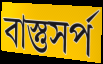
বাস্তুসর্প